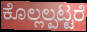
ಕೊಲ್ಲಲ್ಪಟ್ಟರೆ